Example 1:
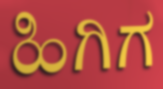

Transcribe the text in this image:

ಹಿಗಿಗ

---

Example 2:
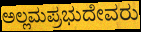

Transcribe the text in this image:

ಅಲ್ಲಮಪ್ರಭುದೇವರು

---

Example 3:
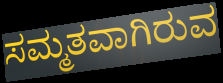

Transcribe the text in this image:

ಸಮ್ಮತವಾಗಿರುವ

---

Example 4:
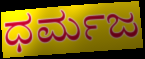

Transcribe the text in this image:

ಧರ್ಮಜ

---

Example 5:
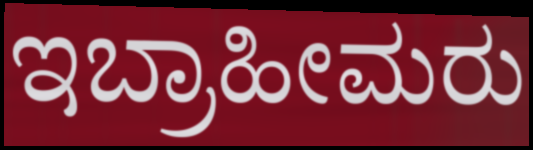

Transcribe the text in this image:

ಇಬ್ರಾಹೀಮರು